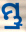
ମ୍ଭ୍ର